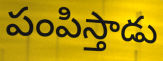
పంపిస్తాడు